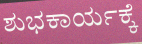
ಶುಭಕಾರ್ಯಕ್ಕೆ